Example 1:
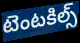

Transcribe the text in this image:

టెంటకిల్స్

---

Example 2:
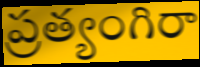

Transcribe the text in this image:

ప్రత్యంగిరా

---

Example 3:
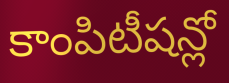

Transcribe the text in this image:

కాంపిటీషన్లో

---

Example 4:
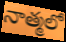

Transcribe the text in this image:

నాత్మలో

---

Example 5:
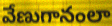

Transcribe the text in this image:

వేణుగానంలా